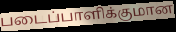
படைப்பாளிக்குமான